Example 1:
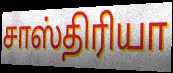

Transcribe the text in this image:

சாஸ்திரியா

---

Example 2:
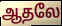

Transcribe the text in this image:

ஆதலே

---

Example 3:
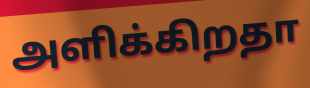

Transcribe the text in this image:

அளிக்கிறதா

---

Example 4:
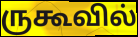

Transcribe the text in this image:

ருகூவில்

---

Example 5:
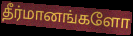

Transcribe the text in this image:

தீர்மானங்களோ